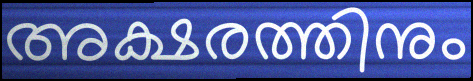
അക്ഷരത്തിനും